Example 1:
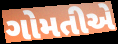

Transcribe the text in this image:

ગોમતીએ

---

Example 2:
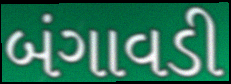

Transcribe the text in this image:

બંગાવડી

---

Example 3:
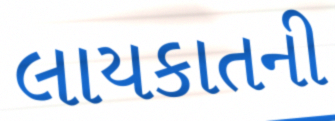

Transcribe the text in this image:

લાયકાતની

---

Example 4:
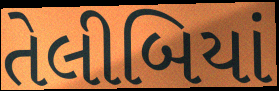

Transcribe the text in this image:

તેલીબિયાં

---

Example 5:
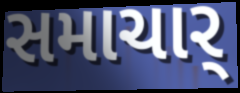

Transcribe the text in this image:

સમાચાર્